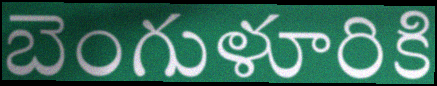
బెంగుళూరికి